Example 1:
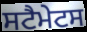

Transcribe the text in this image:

ਸਟੈਮੇਟਸ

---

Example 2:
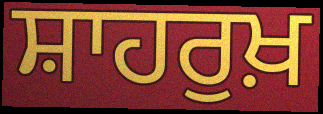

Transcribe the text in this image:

ਸ਼ਾਹਰੁਖ਼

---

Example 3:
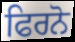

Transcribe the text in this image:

ਫਿਰਨੋ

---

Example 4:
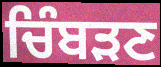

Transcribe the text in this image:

ਚਿੰਬੜਣ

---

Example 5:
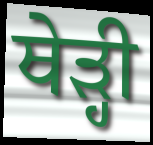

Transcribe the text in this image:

ਥੇੜ੍ਹੀ